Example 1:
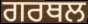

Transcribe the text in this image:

ਗਰਥਲ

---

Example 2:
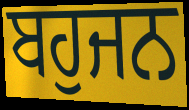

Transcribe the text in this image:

ਬਹੁਜਨ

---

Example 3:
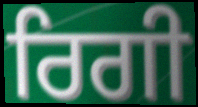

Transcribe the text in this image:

ਰਿਗੀ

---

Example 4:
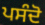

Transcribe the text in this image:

ਪਸੰਦੋ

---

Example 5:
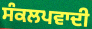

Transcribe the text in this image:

ਸੰਕਲਪਵਾਦੀ